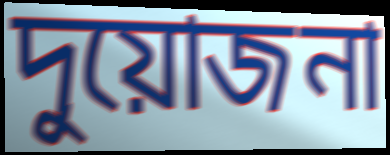
দুয়োজনা